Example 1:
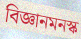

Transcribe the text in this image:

বিজ্ঞানমনস্ক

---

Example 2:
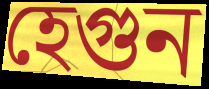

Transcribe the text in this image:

হেগুন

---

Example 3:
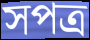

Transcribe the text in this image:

সপত্র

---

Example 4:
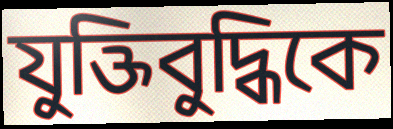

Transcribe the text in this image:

যুক্তিবুদ্ধিকে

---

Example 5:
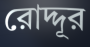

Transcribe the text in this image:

রোদ্দূর